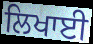
ਲਿਖਾਈ